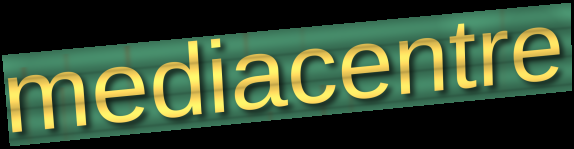
mediacentre